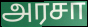
அரசா